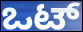
ಒಟ್